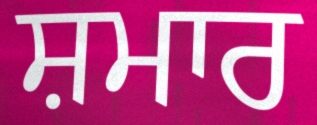
ਸ਼ਮਾਰ